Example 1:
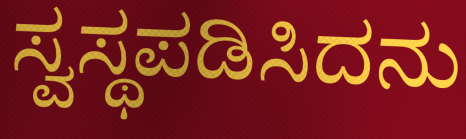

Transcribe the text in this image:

ಸ್ವಸ್ಥಪಡಿಸಿದನು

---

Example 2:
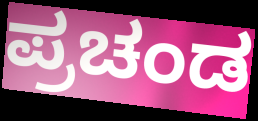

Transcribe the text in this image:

ಪ್ರಚಂಡ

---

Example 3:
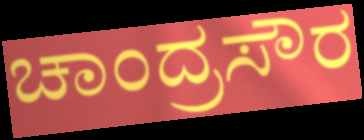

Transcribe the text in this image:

ಚಾಂದ್ರಸೌರ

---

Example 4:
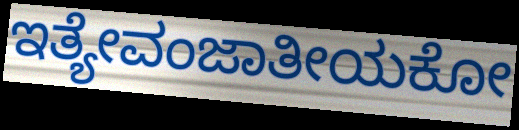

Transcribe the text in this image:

ಇತ್ಯೇವಂಜಾತೀಯಕೋ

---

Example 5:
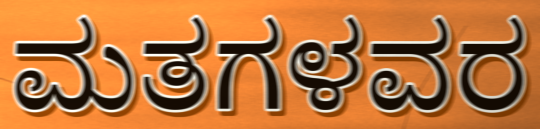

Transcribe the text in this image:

ಮತಗಳವರ